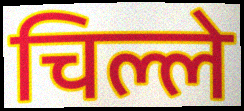
चिल्ले